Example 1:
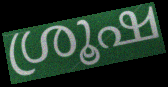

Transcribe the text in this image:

ശ്രൂഷ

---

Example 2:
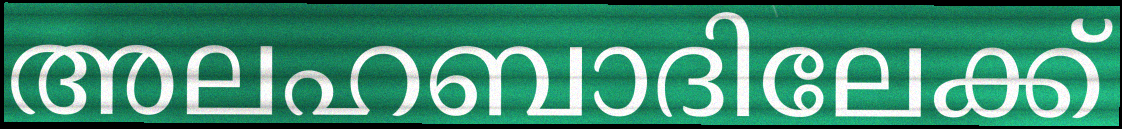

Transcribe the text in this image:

അലഹബാദിലേക്ക്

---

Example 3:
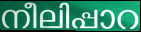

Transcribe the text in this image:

നീലിപ്പാറ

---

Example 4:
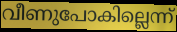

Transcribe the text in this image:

വീണുപോകില്ലെന്ന്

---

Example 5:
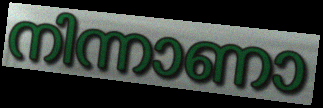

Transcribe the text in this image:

നിന്നാണാ